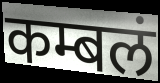
कम्बलं